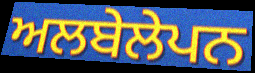
ਅਲਬੇਲੇਪਨ